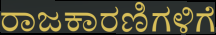
ರಾಜಕಾರಣಿಗಳಿಗೆ